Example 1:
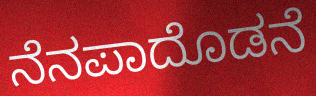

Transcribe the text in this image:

ನೆನಪಾದೊಡನೆ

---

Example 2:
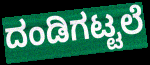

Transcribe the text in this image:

ದಂಡಿಗಟ್ಟಲೆ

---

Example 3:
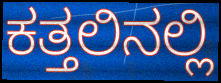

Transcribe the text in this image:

ಕತ್ತಲಿನಲ್ಲಿ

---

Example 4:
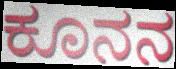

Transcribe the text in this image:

ಕೂನನ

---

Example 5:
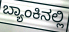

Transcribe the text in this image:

ಬ್ಯಾಂಕಿನಲ್ಲಿ